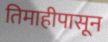
तिमाहीपासून